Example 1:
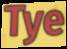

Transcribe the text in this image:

Tye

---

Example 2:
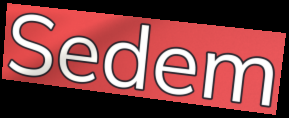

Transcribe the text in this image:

Sedem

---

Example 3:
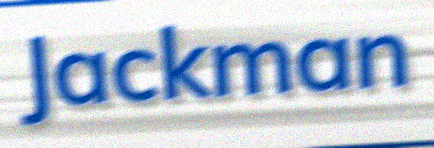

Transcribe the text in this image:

Jackman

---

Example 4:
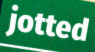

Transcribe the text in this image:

jotted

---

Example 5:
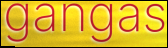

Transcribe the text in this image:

gangas